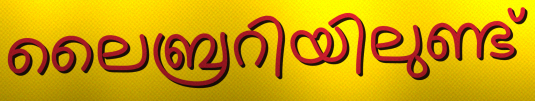
ലൈബ്രറിയിലുണ്ട്